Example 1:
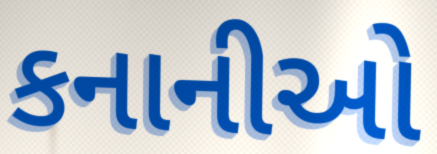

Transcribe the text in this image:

કનાનીઓ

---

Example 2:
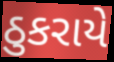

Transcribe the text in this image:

ઠુકરાયે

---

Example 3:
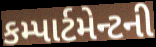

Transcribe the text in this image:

કમ્પાર્ટમેન્ટની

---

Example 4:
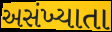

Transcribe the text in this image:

અસંખ્યાતા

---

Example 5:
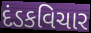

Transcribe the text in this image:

દંડકવિચાર